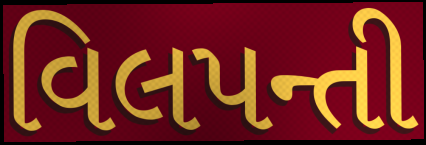
વિલપન્તી